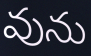
వును